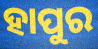
ହାପୁର